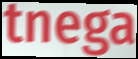
tnega